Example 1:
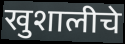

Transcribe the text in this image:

खुशालीचे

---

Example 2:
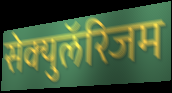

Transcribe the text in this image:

सेक्युलॅरिजम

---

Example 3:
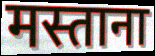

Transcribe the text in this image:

मस्ताना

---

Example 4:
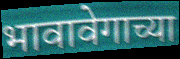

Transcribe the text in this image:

भावावेगाच्या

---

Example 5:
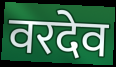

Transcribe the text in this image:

वरदेव